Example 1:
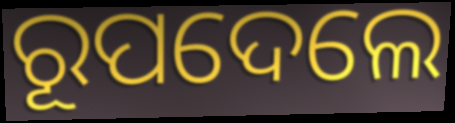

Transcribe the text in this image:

ରୂପଦେଲେ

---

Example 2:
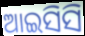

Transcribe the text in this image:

ଆଇସିସି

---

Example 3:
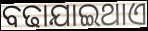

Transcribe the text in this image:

ବଢାଯାଇଥାଏ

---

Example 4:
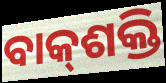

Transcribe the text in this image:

ବାକ୍‌ଶକ୍ତି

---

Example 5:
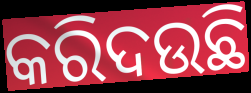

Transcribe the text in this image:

କରିଦଉଛି